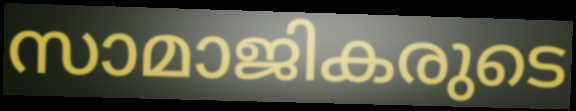
സാമാജികരുടെ